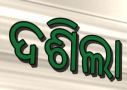
ଦଶିଲା